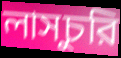
লাসচুরি